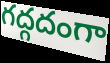
గద్గదంగా